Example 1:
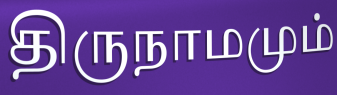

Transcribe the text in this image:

திருநாமமும்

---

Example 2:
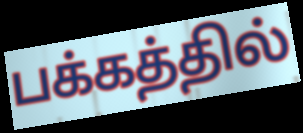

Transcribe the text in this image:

பக்கத்தில்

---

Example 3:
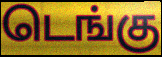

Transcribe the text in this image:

டெங்கு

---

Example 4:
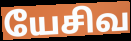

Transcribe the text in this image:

யேசிவ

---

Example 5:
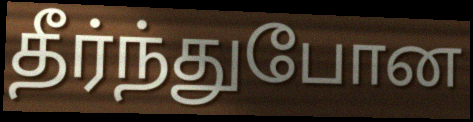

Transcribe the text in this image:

தீர்ந்துபோன